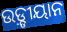
ଉଡ଼୍ଡୀୟାନ